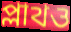
প্লাথও